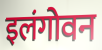
इलंगोवन